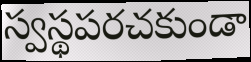
స్వస్థపరచకుండా